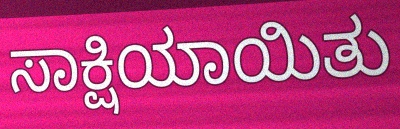
ಸಾಕ್ಷಿಯಾಯಿತು